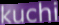
kuchi